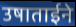
उषाताईने